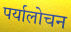
पर्यालोचन